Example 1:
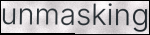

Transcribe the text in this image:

unmasking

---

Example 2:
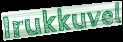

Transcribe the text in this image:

Irukkuvel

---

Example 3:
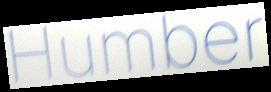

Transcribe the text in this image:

Humber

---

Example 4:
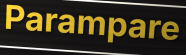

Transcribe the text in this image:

Parampare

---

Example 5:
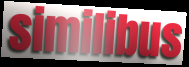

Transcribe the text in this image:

similibus